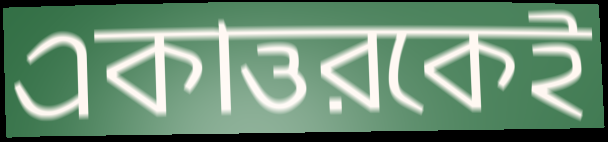
একাত্তরকেই